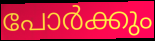
പോർക്കും